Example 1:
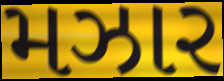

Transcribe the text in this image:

મઝાર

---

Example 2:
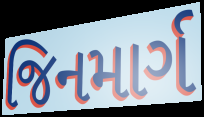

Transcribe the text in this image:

જિનમાર્ગ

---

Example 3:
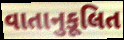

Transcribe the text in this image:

વાતાનુકૂલિત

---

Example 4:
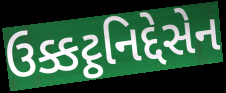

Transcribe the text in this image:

ઉક્કટ્ઠનિદ્દેસેન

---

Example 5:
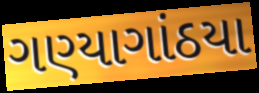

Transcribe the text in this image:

ગણ્યાગાંઠયા